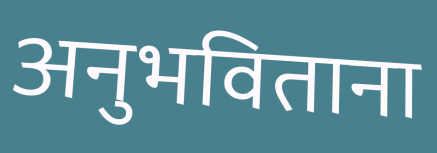
अनुभविताना